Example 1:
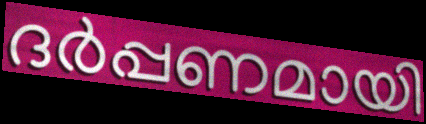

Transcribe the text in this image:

ദർപ്പണമായി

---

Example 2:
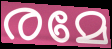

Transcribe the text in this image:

രമേ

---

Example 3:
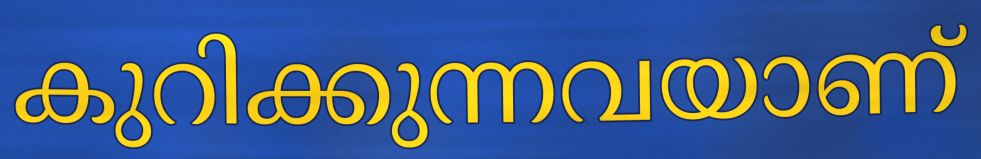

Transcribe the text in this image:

കുറിക്കുന്നവയാണ്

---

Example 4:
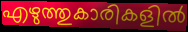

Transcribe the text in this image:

എഴുത്തുകാരികളിൽ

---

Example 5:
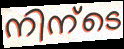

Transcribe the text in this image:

നിന്ടെ